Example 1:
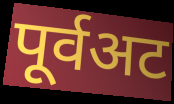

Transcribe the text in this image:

पूर्वअट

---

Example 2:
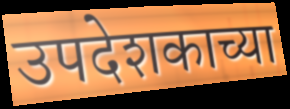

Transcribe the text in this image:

उपदेशकाच्या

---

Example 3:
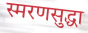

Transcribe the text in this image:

स्मरणसुद्धा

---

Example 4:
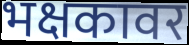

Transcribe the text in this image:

भक्षकावर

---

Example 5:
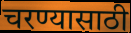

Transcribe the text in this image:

चरण्यासाठी